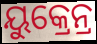
ୟୁକ୍ରେନ୍ର